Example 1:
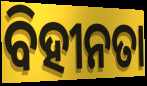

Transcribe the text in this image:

ବିହୀନତା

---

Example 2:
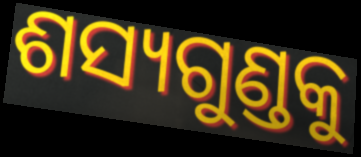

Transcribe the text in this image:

ଶସ୍ୟଗୁଣ୍ଡକୁ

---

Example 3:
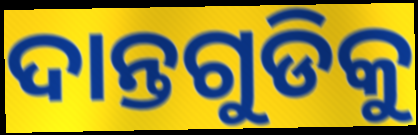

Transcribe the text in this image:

ଦାନ୍ତଗୁଡିକୁ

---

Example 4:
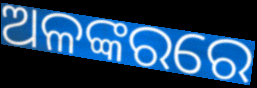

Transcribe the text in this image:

ଅଳଙ୍କରରେ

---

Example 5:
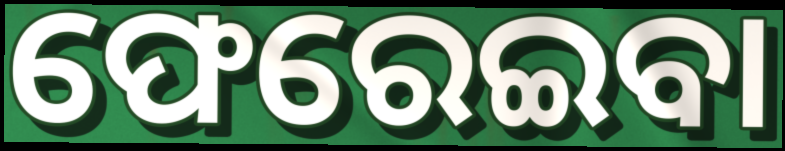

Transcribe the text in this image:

ଫେରେଇବା